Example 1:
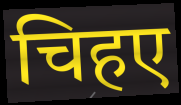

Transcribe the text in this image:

चिहए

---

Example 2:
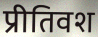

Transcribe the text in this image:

प्रीतिवश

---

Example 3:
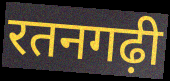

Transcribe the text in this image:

रतनगढ़ी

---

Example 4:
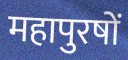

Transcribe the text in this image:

महापुरषों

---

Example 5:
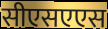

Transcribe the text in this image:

सीएसएएस